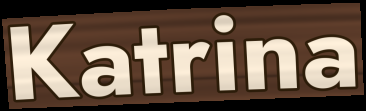
Katrina